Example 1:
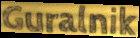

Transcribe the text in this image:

Guralnik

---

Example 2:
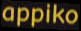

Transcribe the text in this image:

appiko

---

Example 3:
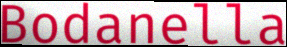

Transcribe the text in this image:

Bodanella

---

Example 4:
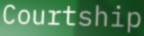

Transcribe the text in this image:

Courtship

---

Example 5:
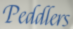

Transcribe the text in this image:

Peddlers